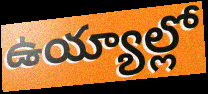
ఉయ్యాల్లో